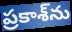
ప్రకాశ్‌ను